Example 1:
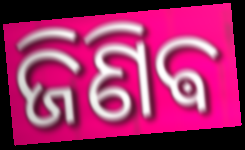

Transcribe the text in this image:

ଜିଣିଵ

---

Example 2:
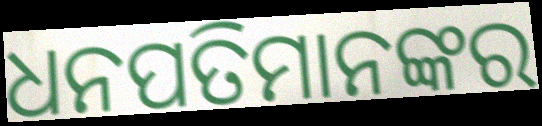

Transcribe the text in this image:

ଧନପତିମାନଙ୍କର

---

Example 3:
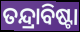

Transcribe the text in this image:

ତନ୍ଦ୍ରାବିଷ୍ଟା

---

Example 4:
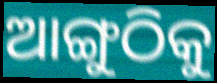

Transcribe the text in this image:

ଆଙ୍ଗୁଠିକୁ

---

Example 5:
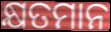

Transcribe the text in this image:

କ୍ଷତମାନ